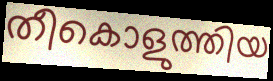
തീകൊളുത്തിയ